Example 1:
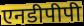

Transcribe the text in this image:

एनडीपीपी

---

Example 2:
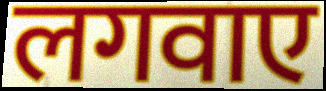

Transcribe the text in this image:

लगवाए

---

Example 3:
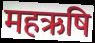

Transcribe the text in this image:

महऋषि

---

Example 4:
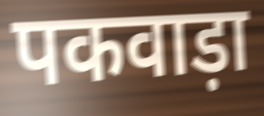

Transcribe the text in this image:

पकवाड़ा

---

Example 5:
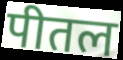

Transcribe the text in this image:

पीतल